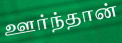
ஊர்ந்தான்